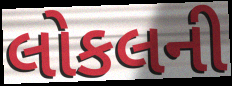
લોકલની